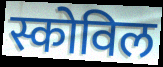
स्कोविल